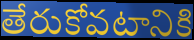
తేరుకోవటానికి